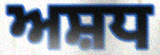
ਅਸ਼ਧ